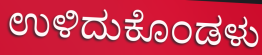
ಉಳಿದುಕೊಂಡಳು